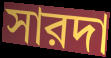
সারদা